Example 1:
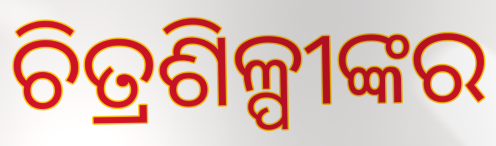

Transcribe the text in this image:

ଚିତ୍ରଶିଳ୍ପୀଙ୍କର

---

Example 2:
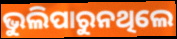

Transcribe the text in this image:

ଭୁଲିପାରୁନଥିଲେ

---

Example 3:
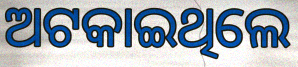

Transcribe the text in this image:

ଅଟକାଇଥିଲେ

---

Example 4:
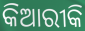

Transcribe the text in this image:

କିଆରୀକି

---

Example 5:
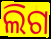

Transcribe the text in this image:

ଲିଗ